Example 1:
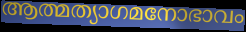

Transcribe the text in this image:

ആത്മത്യാഗമനോഭാവം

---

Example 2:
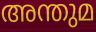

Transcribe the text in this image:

അന്തുമ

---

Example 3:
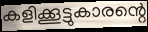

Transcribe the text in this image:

കളിക്കൂട്ടുകാരന്റെ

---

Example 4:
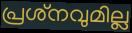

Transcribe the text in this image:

പ്രശ്‌നവുമില്ല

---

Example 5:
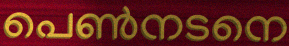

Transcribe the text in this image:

പെൺനടനെ